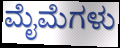
ಮೈಮೆಗಳು